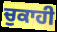
ਚੁਕਾਹੀ